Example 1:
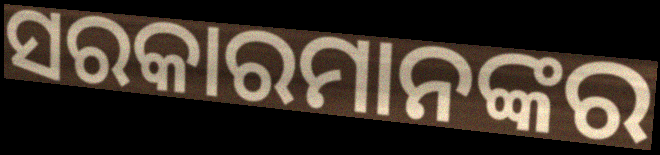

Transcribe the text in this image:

ସରକାରମାନଙ୍କର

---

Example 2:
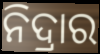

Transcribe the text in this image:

ନିଦ୍ରାର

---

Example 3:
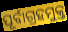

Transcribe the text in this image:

ପୂର୍ବାଗ୍ରହମୁକ୍ତ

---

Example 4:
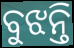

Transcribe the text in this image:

ବୁଝନ୍ତି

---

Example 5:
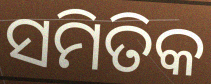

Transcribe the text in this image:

ସମିତିକ